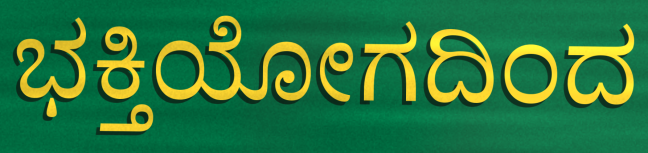
ಭಕ್ತಿಯೋಗದಿಂದ